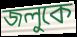
জলুকে